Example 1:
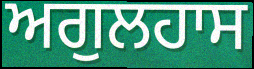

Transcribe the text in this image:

ਅਗੁਲਹਾਸ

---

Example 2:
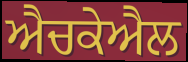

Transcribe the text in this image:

ਐਚਕੇਐਲ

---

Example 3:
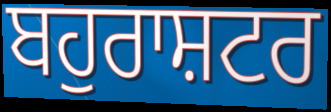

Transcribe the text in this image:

ਬਹੁਰਾਸ਼ਟਰ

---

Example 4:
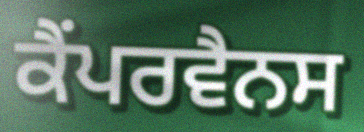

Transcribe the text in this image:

ਕੈਂਪਰਵੈਨਸ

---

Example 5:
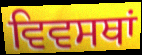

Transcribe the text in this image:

ਵਿਵਸਥਾਂ